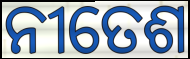
ନୀତେଶ